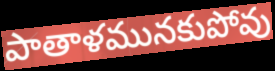
పాతాళమునకుపోవు